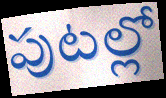
పుటల్లో